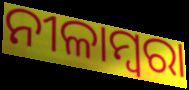
ନୀଳାମ୍ବରା